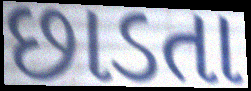
છાડતા